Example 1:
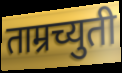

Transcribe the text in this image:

ताम्रच्युती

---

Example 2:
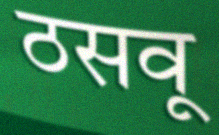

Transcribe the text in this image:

ठसवू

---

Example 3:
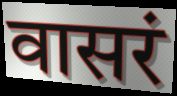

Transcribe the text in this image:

वासरं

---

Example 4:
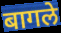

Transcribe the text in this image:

बागले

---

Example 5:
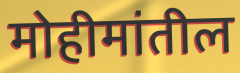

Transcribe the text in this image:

मोहीमांतील